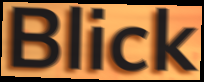
Blick